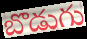
బొడుగు